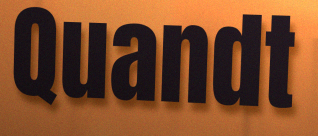
Quandt